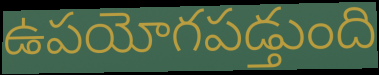
ఉపయోగపడ్తుంది